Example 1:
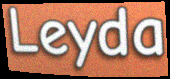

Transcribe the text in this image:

Leyda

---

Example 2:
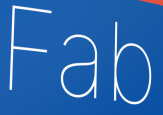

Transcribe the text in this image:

Fab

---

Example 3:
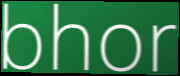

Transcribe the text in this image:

bhor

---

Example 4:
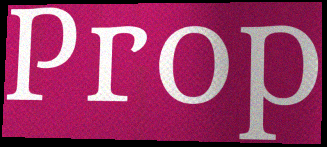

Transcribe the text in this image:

Prop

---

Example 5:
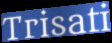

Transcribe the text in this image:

Trisati